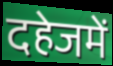
दहेजमें